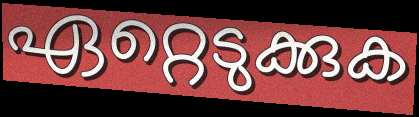
ഏറ്റെടുക്കുക